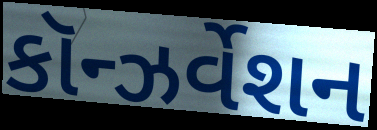
કૉન્ઝર્વેશન